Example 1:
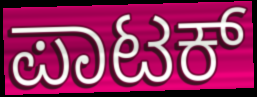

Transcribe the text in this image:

ಪಾಟಕ್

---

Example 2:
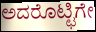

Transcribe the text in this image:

ಅದರೊಟ್ಟಿಗೇ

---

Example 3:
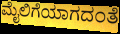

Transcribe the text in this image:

ಮೈಲಿಗೆಯಾಗದಂತೆ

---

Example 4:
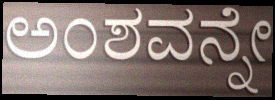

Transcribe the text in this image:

ಅಂಶವನ್ನೇ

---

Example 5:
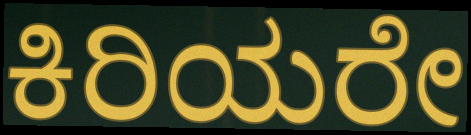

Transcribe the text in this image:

ಕಿರಿಯರೇ